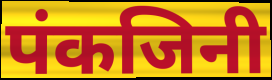
पंकजिनी